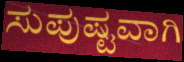
ಸುಪುಷ್ಟವಾಗಿ